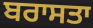
ਬਰਾਸਤਾ